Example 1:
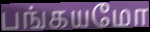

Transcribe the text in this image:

பங்கயமோ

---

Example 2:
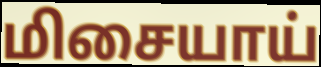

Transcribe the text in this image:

மிசையாய்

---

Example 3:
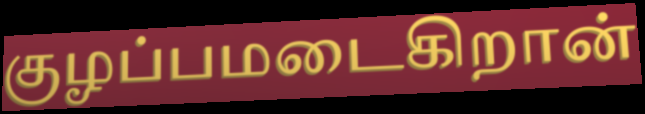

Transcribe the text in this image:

குழப்பமடைகிறான்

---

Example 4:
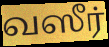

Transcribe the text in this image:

வஸீர்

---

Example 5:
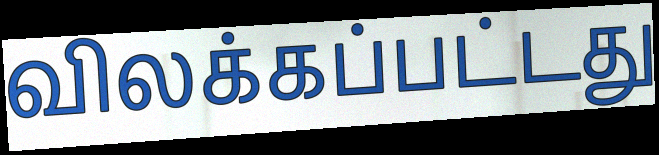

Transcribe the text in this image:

விலக்கப்பட்டது